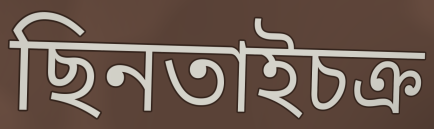
ছিনতাইচক্র